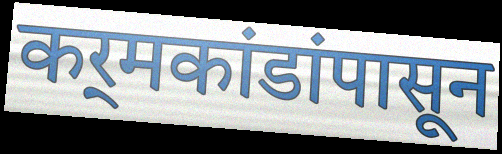
कर्मकांडांपासून